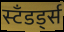
स्टँडर्ड्स